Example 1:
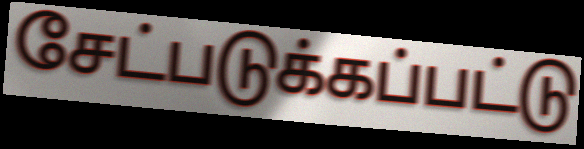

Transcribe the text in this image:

சேட்படுக்கப்பட்டு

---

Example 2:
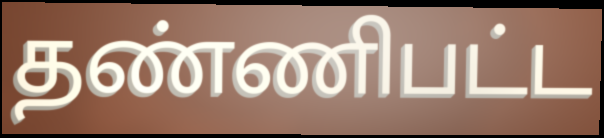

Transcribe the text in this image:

தண்ணிபட்ட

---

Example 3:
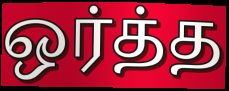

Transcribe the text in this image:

ஒர்த்த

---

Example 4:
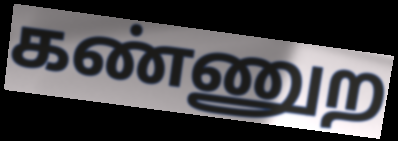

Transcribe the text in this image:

கண்ணுற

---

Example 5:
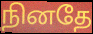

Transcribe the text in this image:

நினதே